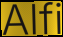
Alfi